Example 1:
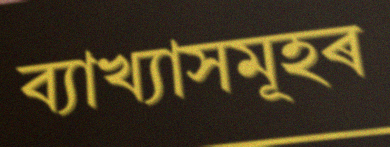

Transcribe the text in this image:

ব্যাখ্যাসমূহৰ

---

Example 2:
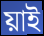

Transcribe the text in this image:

য়াই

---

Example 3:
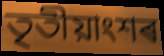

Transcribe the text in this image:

তৃতীয়াংশৰ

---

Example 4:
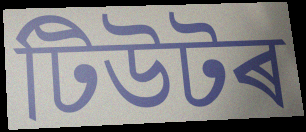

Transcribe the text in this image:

টিউটৰ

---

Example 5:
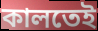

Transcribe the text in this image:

কালতেই